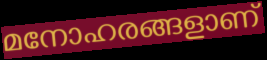
മനോഹരങ്ങളാണ്